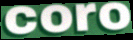
coro